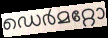
ഡെർമറ്റോ